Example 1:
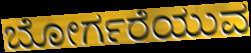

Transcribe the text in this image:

ಬೋರ್ಗರೆಯುವ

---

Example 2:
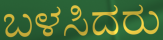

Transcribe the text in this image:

ಬಳಸಿದರು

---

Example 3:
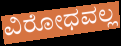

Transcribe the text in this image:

ವಿರೋಧವಲ್ಲ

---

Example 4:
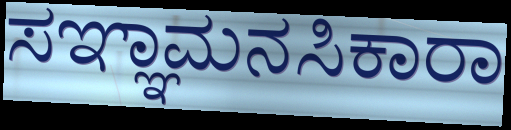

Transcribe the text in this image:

ಸಞ್ಞಾಮನಸಿಕಾರಾ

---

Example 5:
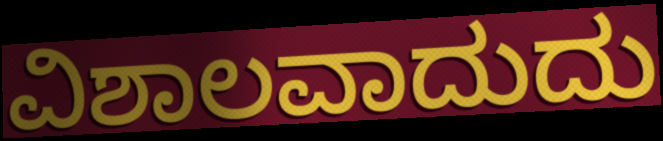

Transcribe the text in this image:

ವಿಶಾಲವಾದುದು